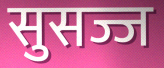
सुसज्ज